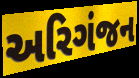
અરિગંજન